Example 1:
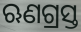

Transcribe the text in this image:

ଋଣଗ୍ରସ୍ତ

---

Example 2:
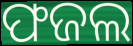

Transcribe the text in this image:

ଫଜଲ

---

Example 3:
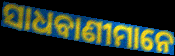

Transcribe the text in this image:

ସାଧବାଣୀମାନେ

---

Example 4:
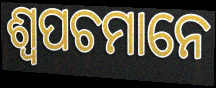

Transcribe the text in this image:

ଶ୍ୱପଚମାନେ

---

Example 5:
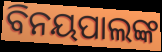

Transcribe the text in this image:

ବିନୟପାଲଙ୍କ